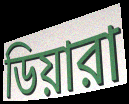
ডিয়ারা